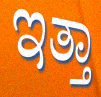
ಇತ್ತಾ